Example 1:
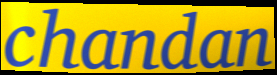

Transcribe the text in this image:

chandan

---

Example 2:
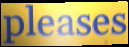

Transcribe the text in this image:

pleases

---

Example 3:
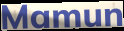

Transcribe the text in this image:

Mamun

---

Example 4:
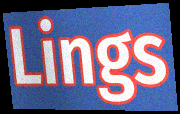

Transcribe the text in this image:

Lings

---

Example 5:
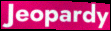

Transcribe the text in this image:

Jeopardy